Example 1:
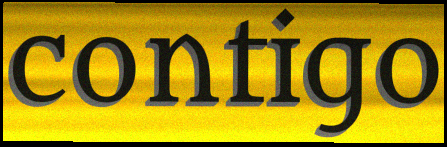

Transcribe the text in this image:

contigo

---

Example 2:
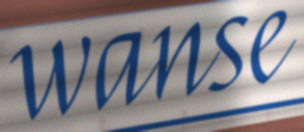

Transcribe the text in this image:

wanse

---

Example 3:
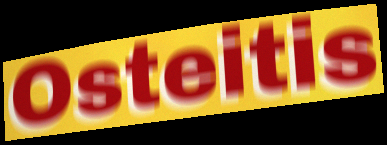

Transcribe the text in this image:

Osteitis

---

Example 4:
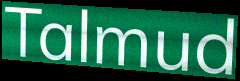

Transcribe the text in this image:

Talmud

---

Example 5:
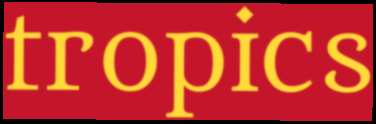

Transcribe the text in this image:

tropics